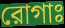
রোগাঃ